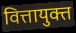
वित्तायुक्त